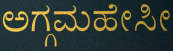
ಅಗ್ಗಮಹೇಸೀ